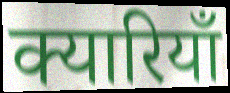
क्यारियाँ